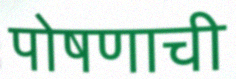
पोषणाची